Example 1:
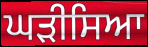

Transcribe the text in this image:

ਘੜੀਸਿਆ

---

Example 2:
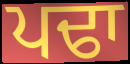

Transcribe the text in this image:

ਪਢਾ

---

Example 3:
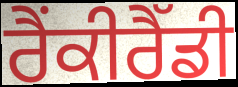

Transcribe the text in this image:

ਰੈਂਕੀਰੈੱਡੀ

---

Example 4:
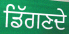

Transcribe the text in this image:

ਡਿੱਗਣਦੇ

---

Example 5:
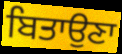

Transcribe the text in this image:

ਬਿਤਾਉਣਾ